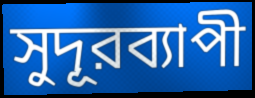
সুদূরব্যাপী